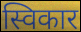
स्विकार